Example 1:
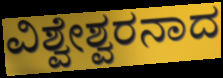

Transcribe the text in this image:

ವಿಶ್ವೇಶ್ವರನಾದ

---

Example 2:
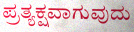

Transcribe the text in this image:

ಪ್ರತ್ಯಕ್ಷವಾಗುವುದು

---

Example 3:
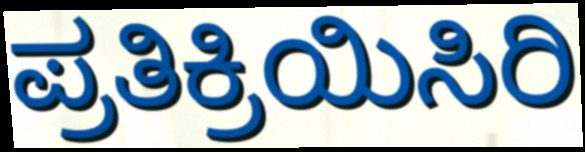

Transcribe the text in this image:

ಪ್ರತಿಕ್ರಿಯಿಸಿರಿ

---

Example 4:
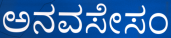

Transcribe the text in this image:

ಅನವಸೇಸಂ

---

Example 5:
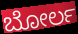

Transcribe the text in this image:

ಬೋರ್ಲ